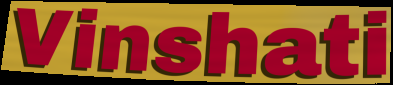
Vinshati